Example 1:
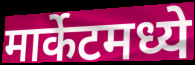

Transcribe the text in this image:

मार्केटमध्ये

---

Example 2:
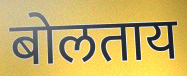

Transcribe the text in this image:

बोलताय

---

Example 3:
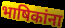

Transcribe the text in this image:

भाषिकांना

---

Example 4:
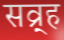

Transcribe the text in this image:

सव्र्ह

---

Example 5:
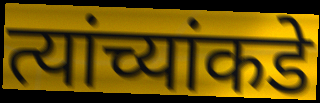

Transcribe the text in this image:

त्यांच्यांकडे